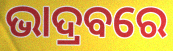
ଭାଦ୍ରବରେ